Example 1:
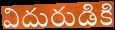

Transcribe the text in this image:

విదురుడికి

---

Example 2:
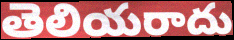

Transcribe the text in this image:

తెలియరాదు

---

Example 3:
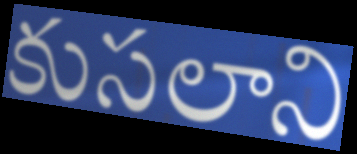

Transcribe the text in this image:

కుసలాని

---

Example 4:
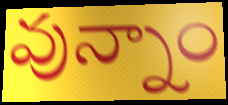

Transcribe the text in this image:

వున్నాం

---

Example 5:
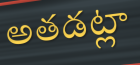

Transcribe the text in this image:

అతడట్లా